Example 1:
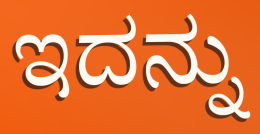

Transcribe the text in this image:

ಇದನ್ನು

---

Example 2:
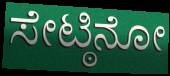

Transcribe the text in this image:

ಸೇಟ್ಠಿನೋ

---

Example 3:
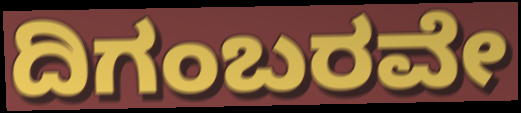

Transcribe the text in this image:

ದಿಗಂಬರವೇ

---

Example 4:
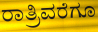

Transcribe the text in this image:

ರಾತ್ರಿವರೆಗೂ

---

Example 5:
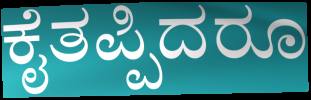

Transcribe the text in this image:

ಕೈತಪ್ಪಿದರೂ